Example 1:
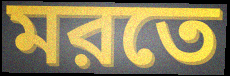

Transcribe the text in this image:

মরতে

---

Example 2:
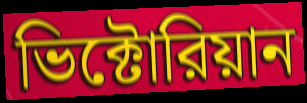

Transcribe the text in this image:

ভিক্টোরিয়ান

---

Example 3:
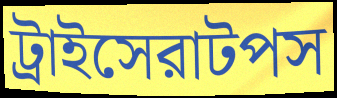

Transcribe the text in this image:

ট্রাইসেরাটপস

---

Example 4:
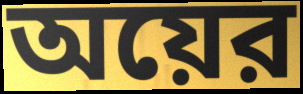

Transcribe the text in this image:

অয়ের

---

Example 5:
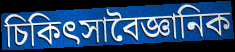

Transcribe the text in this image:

চিকিৎসাবৈজ্ঞানিক